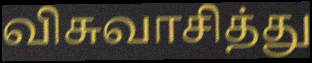
விசுவாசித்து